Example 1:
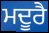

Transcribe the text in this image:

ਮਦੂਰੈ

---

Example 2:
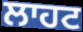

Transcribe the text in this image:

ਲਾਹਟ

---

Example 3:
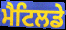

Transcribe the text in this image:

ਮੈਟਿਲਡੇ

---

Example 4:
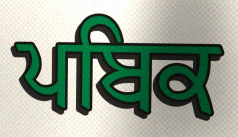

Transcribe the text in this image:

ਪਬਿਕ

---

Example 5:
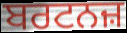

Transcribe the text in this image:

ਬਰਟਨਜ਼